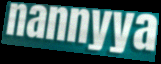
nannyya